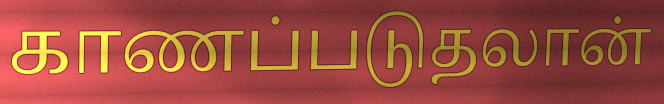
காணப்படுதலான்